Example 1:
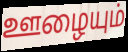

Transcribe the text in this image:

ஊழையும்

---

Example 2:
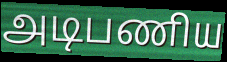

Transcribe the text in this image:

அடிபணிய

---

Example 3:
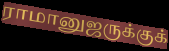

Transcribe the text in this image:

ராமானுஜருக்குக்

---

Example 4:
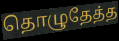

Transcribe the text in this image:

தொழுதேத்த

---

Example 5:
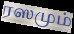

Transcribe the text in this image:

ரஸமும்